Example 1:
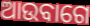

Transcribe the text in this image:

ଆଉବାଗେ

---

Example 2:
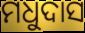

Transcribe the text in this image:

ମଧୁଦାସ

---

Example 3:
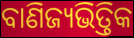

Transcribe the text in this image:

ବାଣିଜ୍ୟଭିତ୍ତିକ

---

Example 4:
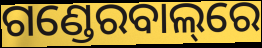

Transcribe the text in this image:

ଗଣ୍ଡେରବାଲ୍‌ରେ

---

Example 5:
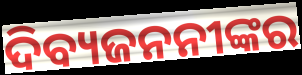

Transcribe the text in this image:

ଦିବ୍ୟଜନନୀଙ୍କର